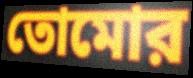
তোমোর